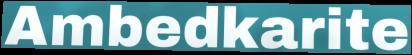
Ambedkarite